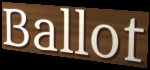
Ballot